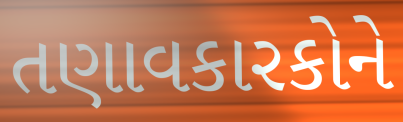
તણાવકારકોને